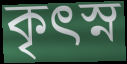
কৃৎস্ন